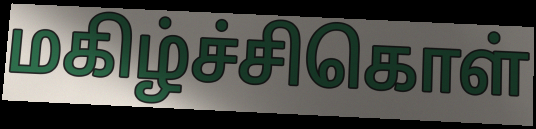
மகிழ்ச்சிகொள்